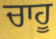
ਚਾਹੂ